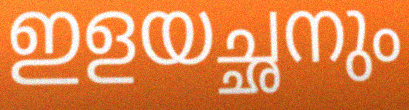
ഇളയച്ഛനും